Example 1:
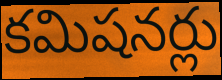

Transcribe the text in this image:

కమిషనర్లు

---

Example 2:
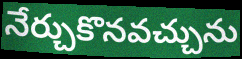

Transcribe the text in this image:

నేర్చుకొనవచ్చును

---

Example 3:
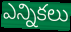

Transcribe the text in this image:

ఎన్నికలు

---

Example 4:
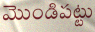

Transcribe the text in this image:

మొండిపట్టు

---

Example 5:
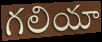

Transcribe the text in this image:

గలియా